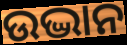
ଉଦ୍ଭାନ